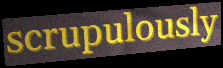
scrupulously